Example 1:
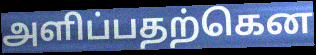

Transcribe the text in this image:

அளிப்பதற்கென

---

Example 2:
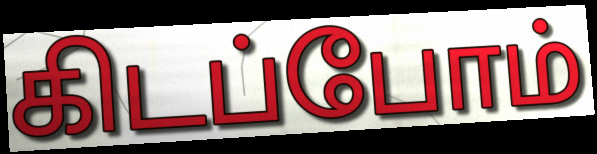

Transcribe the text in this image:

கிடப்போம்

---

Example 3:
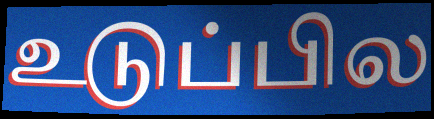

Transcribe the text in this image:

உடுப்பில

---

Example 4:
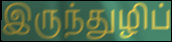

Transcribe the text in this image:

இருந்துழிப்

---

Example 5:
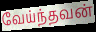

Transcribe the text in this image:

வேய்ந்தவன்